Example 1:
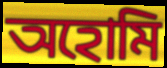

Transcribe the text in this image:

অহোমি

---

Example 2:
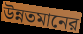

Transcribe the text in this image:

উন্নতমানের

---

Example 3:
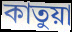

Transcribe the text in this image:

কাতুয়া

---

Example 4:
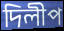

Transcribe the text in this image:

দিলীপ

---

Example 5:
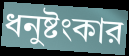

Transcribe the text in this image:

ধনুষ্টংকার